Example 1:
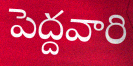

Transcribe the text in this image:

పెద్దవారి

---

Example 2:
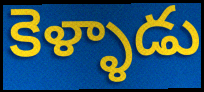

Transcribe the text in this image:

కెళ్ళాడు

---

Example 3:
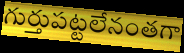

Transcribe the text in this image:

గుర్తుపట్టలేనంతగా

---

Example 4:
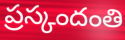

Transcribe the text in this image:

ప్రస్కందంతి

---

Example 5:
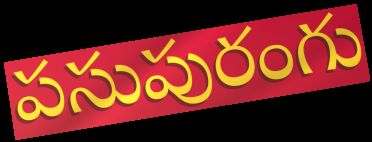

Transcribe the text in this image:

పసుపురంగు